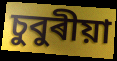
চুবুৰীয়া